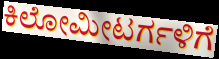
ಕಿಲೋಮೀಟರ್ಗಳಿಗೆ